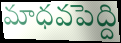
మాధవపెద్ది